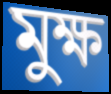
মুক্ষ